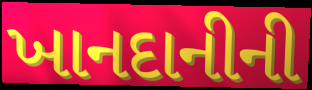
ખાનદાનીની